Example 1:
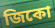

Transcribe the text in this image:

জিকো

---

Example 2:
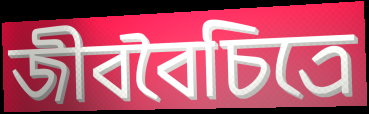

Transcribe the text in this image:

জীববৈচিত্রে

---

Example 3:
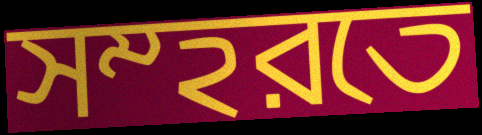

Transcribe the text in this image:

সম্হরতে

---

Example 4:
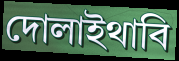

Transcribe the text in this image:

দোলাইথাবি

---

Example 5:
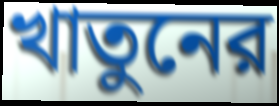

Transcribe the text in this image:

খাতুনের